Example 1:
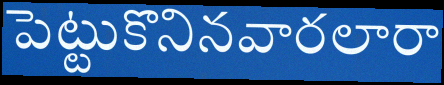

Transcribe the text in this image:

పెట్టుకొనినవారలారా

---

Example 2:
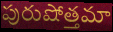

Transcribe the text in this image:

పురుషోత్తమా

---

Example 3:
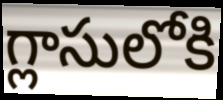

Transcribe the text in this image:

గ్లాసులోకి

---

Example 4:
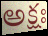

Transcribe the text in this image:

అక్షః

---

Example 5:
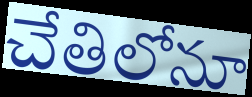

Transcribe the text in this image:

చేతిలోనూ